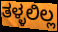
ತಳ್ಳಲಿಲ್ಲ